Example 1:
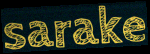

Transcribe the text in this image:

sarake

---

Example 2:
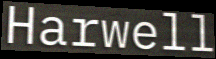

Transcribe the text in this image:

Harwell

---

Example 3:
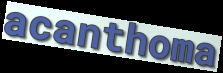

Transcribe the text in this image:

acanthoma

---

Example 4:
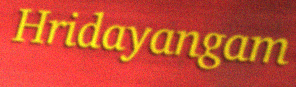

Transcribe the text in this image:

Hridayangam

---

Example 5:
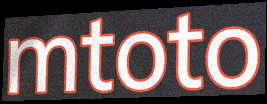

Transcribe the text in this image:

mtoto